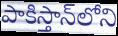
పాకిస్తాన్‌లోని